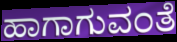
ಹಾಗಾಗುವಂತೆ